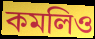
কমলিও